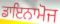
ਡਾਇਨਾਮੋਜ